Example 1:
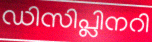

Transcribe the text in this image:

ഡിസിപ്ലിനറി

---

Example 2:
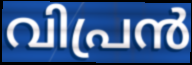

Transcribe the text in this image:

വിപ്രൻ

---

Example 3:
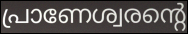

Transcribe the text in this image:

പ്രാണേശ്വരന്റെ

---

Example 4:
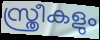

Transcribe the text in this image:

സ്ത്രീകളും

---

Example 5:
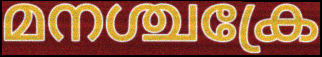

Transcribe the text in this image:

മനശ്ചക്രേ